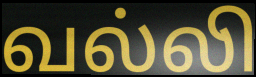
வல்லி